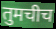
तुमचीच